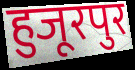
हुजूरपुर